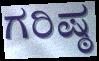
ಗರಿಷ್ಠ